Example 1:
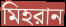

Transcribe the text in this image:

মিহরান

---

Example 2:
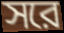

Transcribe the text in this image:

সরে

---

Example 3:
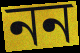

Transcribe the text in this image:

নন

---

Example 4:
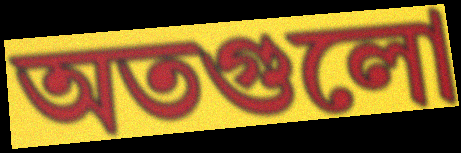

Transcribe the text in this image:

অতগুলো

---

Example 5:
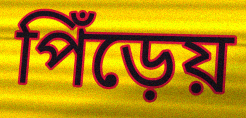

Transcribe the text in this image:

পিঁড়েয়